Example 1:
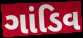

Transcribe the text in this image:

ગાંડિવ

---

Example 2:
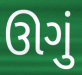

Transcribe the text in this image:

ઊગું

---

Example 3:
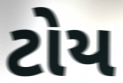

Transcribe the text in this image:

ટોય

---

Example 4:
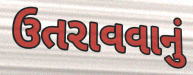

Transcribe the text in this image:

ઉતરાવવાનું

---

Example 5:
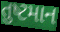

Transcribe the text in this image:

તુષ્ટમાન